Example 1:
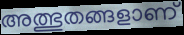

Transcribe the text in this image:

അത്ഭുതങ്ങളാണ്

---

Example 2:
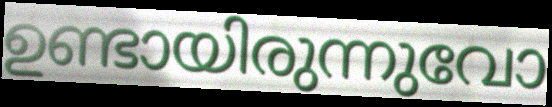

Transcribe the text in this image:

ഉണ്ടായിരുന്നുവോ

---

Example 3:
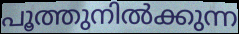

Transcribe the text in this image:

പൂത്തുനിൽക്കുന്ന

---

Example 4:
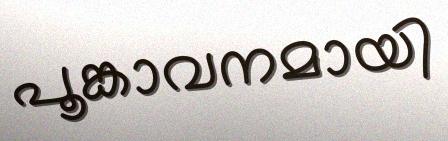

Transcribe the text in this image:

പൂങ്കാവനമായി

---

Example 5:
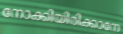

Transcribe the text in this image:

നോക്കിയിരിക്കാനേ